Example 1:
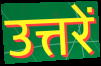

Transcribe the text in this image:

उत्तरें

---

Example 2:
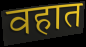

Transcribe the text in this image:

वहात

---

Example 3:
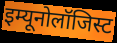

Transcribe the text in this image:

इम्यूनोलॉजिस्ट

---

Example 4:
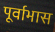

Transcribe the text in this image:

पूर्वाभास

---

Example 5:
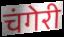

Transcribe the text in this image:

चंगेरी